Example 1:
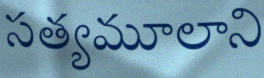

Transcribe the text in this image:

సత్యమూలాని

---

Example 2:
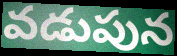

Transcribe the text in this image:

వడుపున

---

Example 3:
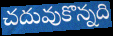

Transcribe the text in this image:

చదువుకొన్నది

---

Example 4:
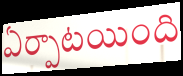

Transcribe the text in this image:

ఏర్పాటయింది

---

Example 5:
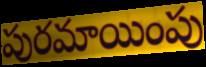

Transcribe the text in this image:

పురమాయింపు